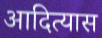
आदित्यास